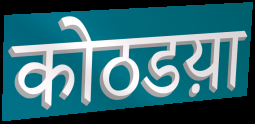
कोठडय़ा